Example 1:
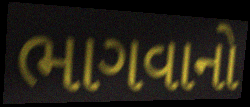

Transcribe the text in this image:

ભાગવાનો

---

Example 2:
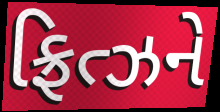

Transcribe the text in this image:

ફ્રિત્ઝને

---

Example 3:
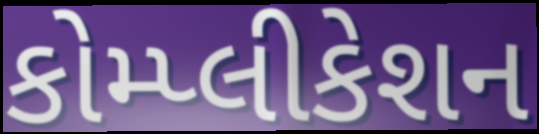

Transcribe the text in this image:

કોમ્પ્લીકેશન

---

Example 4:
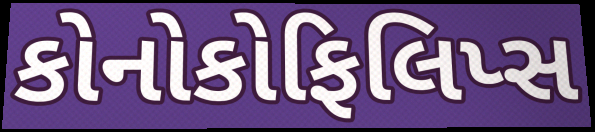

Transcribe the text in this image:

કોનોકોફિલિપ્સ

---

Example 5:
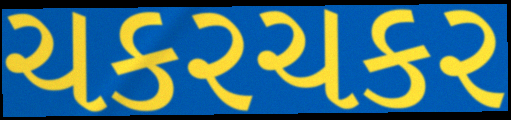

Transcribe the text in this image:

ચકરચકર